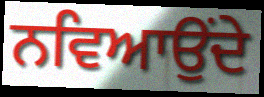
ਨਵਿਆਉਂਦੇ